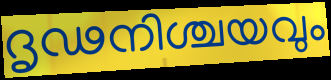
ദൃഢനിശ്ചയവും